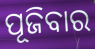
ପୂଜିବାର